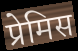
प्रेमिस